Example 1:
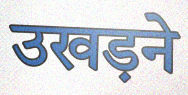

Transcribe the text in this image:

उखड़ने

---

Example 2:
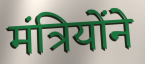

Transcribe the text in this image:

मंत्रियोंने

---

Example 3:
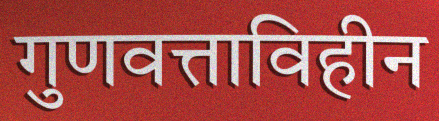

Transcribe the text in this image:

गुणवत्ताविहीन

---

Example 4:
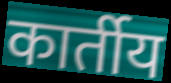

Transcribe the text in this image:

कार्तीय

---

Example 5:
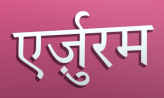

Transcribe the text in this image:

एर्ज़ुरम